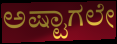
ಅಷ್ಟಾಗಲೇ